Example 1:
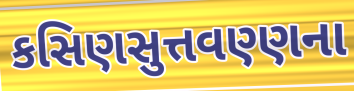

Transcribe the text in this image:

કસિણસુત્તવણ્ણના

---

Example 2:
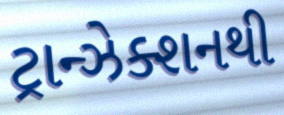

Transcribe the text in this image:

ટ્રાન્ઝેક્શનથી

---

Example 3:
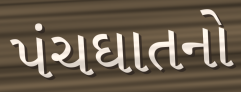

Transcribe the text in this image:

પંચઘાતનો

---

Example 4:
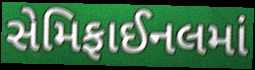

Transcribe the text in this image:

સેમિફાઈનલમાં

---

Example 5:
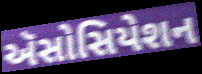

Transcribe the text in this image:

ઍસોસિયેશન